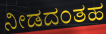
ನೀಡದಂತಹ